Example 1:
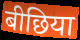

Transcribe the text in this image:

बीछिया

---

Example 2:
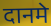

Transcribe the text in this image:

दानमे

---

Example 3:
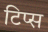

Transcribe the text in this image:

टिप्‍स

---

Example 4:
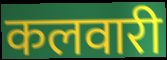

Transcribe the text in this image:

कलवारी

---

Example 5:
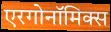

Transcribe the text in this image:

एरगोनॉमिक्स